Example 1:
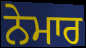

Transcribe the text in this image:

ਨੇਮਾਰ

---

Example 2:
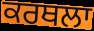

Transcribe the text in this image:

ਕਰਥਲਾ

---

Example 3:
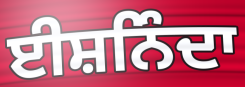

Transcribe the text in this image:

ਈਸ਼ਨਿੰਦਾ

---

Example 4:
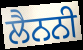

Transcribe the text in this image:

ਲੈਨਨੀ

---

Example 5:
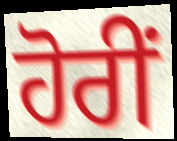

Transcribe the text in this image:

ਹੋਰੀਂ